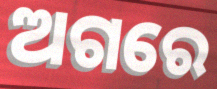
ଅଗରେ